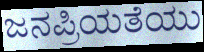
ಜನಪ್ರಿಯತೆಯು